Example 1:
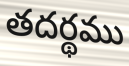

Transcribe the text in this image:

తదర్థము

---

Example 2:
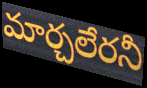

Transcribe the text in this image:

మార్చలేరనీ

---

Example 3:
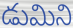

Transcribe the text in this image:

డుమిని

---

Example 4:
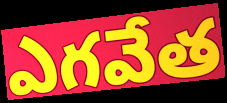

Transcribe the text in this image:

ఎగవేత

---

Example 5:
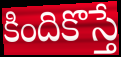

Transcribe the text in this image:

కిందికొస్తే